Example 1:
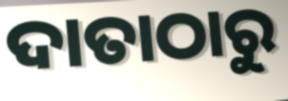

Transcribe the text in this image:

ଦାତାଠାରୁ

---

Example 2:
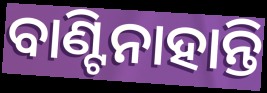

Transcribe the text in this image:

ବାଣ୍ଟିନାହାନ୍ତି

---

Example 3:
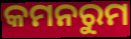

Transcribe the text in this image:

କମନରୁମ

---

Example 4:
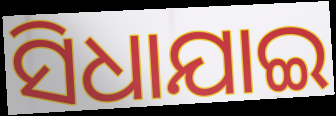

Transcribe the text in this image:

ସିଧାଯାଇ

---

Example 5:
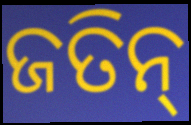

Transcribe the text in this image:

ଜତିନ୍